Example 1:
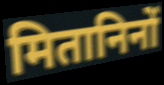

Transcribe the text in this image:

मितानिनों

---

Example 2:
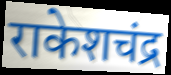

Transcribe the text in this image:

राकेशचंद्र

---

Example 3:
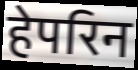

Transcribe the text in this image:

हेपरिन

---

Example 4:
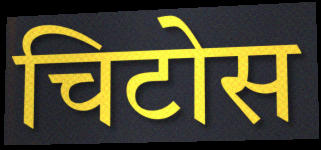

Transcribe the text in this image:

चिटोस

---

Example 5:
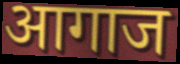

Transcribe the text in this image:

आगाज